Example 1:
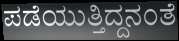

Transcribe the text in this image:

ಪಡೆಯುತ್ತಿದ್ದನಂತೆ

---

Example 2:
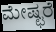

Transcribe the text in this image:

ಮೇಷ್ಟರೆ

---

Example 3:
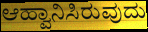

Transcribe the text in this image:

ಆಹ್ವಾನಿಸಿರುವುದು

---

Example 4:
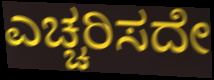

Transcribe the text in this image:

ಎಚ್ಚರಿಸದೇ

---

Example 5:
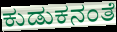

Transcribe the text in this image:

ಕುಡುಕನಂತೆ